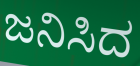
ಜನಿಸಿದ